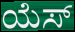
ಯೆಸ್